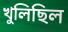
খুলিছিল